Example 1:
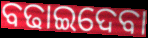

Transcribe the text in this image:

ବଢାଇଦେବା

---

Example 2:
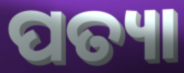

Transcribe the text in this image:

ପତ୍ୟା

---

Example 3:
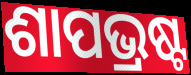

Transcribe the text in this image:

ଶାପଭ୍ରଷ୍ଟ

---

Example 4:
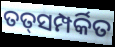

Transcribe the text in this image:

ତତ୍‌ସମ୍ପର୍କିତ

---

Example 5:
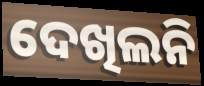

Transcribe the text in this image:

ଦେଖିଲନି